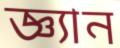
জ্ঞ্যান